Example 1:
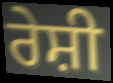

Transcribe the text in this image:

ਰੇਸ਼ੀ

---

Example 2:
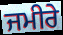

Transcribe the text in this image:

ਜਮੀਰੇ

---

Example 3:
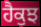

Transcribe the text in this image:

ਹੈਕੁਝ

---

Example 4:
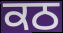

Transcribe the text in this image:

ਕਠ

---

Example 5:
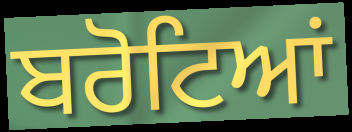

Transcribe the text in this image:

ਬਰੋਟਿਆਂ